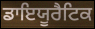
ਡਾਇਯੂਰੈਟਿਕ